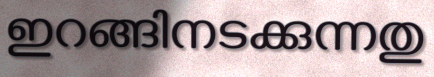
ഇറങ്ങിനടക്കുന്നതു